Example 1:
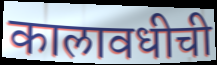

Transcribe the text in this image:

कालावधीची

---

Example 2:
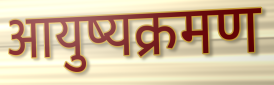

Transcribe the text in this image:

आयुष्यक्रमण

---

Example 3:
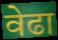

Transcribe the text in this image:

वेढा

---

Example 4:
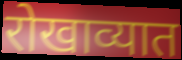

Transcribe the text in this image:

रोखाव्यात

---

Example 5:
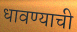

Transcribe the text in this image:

धावण्याची